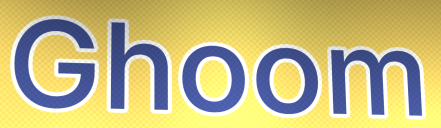
Ghoom